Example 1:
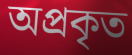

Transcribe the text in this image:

অপ্ৰকৃত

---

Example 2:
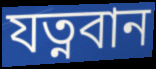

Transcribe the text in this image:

যত্নবান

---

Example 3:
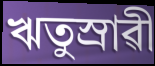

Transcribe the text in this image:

ঋতুস্ৰাৱী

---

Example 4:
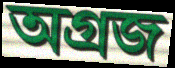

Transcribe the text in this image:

অগ্ৰজ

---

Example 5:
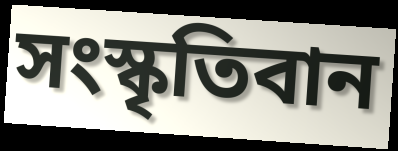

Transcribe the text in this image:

সংস্কৃতিবান